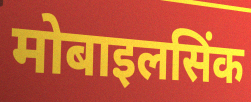
मोबाइलसिंक